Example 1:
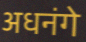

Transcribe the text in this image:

अधनंगे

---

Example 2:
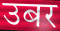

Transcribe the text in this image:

उबर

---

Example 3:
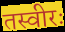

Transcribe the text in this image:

तस्वीरः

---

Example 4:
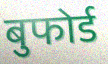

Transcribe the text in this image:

बुफोर्ड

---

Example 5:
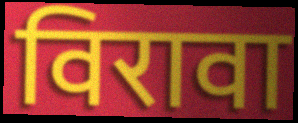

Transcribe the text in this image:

विरावा